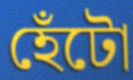
হেঁটো